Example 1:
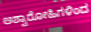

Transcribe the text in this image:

ಅಶ್ವಾರೋಹಿಗಳಿಂದ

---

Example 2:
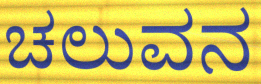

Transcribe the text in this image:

ಚಲುವನ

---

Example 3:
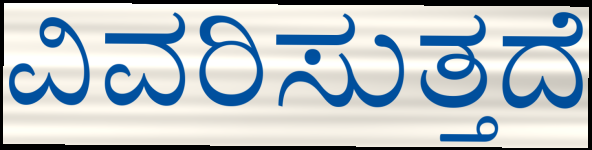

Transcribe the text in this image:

ವಿವರಿಸುತ್ತದೆ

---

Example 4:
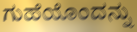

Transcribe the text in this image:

ಗುಹೆಯೊಂದನ್ನು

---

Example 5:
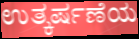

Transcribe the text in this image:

ಉತ್ಕರ್ಷಣೆಯ